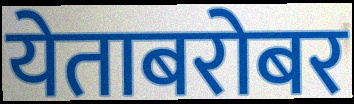
येताबरोबर